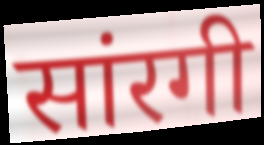
सांरगी